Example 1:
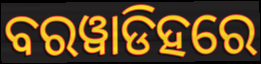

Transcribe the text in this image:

ବରୱାଡିହରେ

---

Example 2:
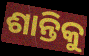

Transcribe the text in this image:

ଶାନ୍ତିକୁ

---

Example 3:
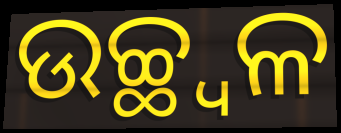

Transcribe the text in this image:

ଉଚ୍ଛ୍ୱଳ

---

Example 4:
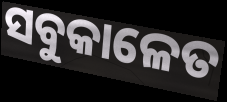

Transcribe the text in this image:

ସବୁକାଳେତ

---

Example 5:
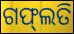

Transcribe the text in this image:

ଗଫ୍‌ଲତି